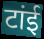
टांई